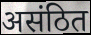
असंठित